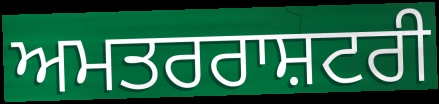
ਅਮਤਰਰਾਸ਼ਟਰੀ